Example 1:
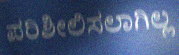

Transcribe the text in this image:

ಪರಿಶೀಲಿಸಲಾಗಿಲ್ಲ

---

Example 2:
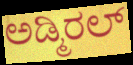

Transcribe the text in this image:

ಅಡ್ಮಿರಲ್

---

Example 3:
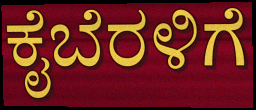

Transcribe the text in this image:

ಕೈಬೆರಳಿಗೆ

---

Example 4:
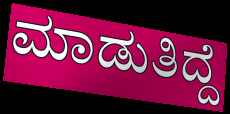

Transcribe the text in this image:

ಮಾಡುತಿದ್ದೆ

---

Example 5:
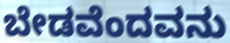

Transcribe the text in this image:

ಬೇಡವೆಂದವನು